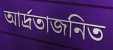
আর্দ্রতাজনিত